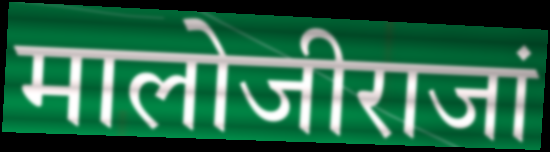
मालोजीराजां